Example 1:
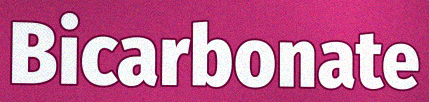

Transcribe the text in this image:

Bicarbonate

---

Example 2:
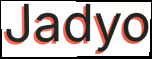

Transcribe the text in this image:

Jadyo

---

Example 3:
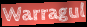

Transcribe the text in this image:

Warragul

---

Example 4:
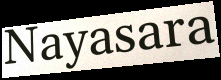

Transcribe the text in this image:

Nayasara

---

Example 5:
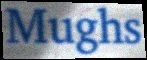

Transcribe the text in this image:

Mughs